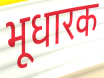
भूधारक